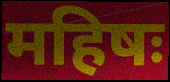
महिषः